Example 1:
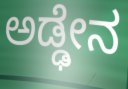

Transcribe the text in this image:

ಅಡ್ಢೇನ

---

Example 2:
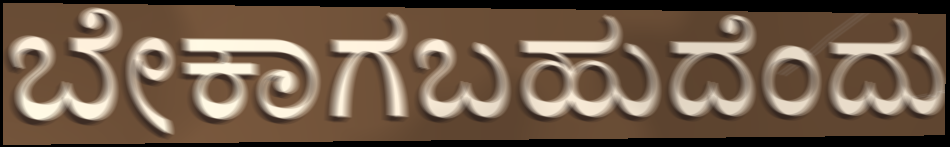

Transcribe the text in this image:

ಬೇಕಾಗಬಹುದೆಂದು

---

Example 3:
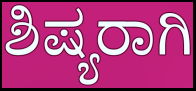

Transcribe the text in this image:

ಶಿಷ್ಯರಾಗಿ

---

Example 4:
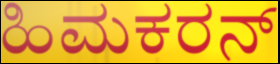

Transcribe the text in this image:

ಹಿಮಕರನ್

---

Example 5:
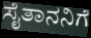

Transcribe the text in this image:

ಸೈತಾನನಿಗೆ